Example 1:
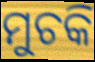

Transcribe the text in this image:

ମୁଚକି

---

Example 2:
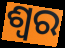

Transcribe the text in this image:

ଶ୍ୱର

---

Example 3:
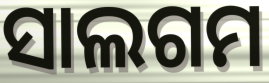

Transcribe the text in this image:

ସାଲଗମ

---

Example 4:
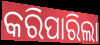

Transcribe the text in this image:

କରିପାରିଲା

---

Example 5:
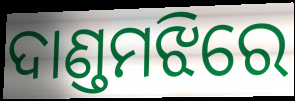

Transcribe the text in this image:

ଦାଣ୍ଡମଝିରେ